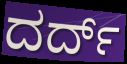
ದರ್ದ್